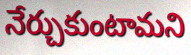
నేర్చుకుంటామని